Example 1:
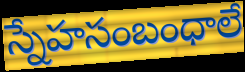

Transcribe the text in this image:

స్నేహసంబంధాలే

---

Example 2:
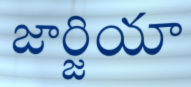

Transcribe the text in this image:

జార్జియా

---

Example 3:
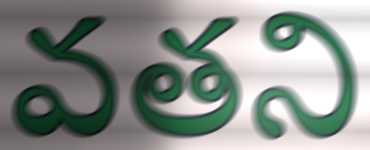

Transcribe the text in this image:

వతని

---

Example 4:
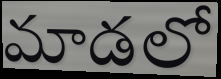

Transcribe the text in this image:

మాడలో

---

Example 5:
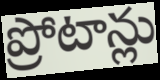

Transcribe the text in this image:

ప్రోటాన్లు